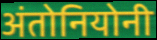
अंतोनियोनी